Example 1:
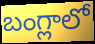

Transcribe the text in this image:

బంగ్లాలో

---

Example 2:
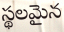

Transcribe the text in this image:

స్థలమైన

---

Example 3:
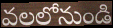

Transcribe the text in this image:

వలలోనుండి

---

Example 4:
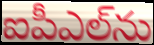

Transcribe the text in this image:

ఐపీఎల్‌ను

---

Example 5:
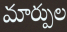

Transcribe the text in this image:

మార్పుల